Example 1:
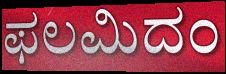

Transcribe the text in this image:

ಫಲಮಿದಂ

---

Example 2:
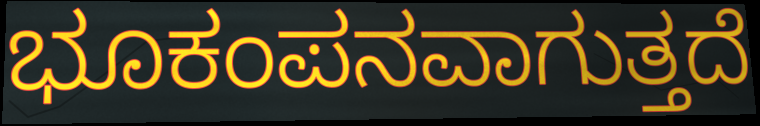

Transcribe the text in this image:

ಭೂಕಂಪನವಾಗುತ್ತದೆ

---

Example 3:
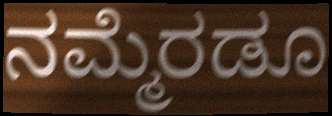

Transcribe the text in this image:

ನಮ್ಮೆರಡೂ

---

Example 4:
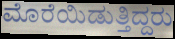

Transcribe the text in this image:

ಮೊರೆಯಿಡುತ್ತಿದ್ದರು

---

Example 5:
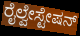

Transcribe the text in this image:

ರೈಲ್ವೇಸ್ಟೇಷನ್